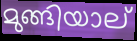
മുങ്ങിയാല്